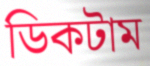
ডিকটাম